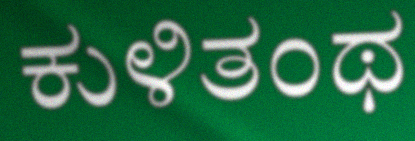
ಕುಳಿತಂಥ